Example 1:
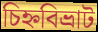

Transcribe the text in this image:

চিহ্নবিভ্রাট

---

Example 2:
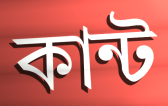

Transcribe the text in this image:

কান্ট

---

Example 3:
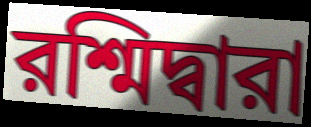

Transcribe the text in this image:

রশ্মিদ্বারা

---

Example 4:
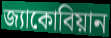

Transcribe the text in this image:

জ্যাকোবিয়ান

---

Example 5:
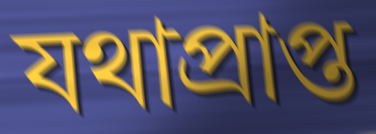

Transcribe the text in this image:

যথাপ্রাপ্ত